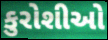
કુરોશીઓ